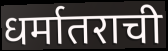
धर्मातराची